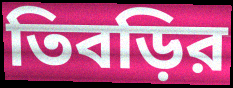
তিবড়ির